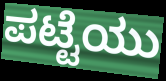
ಪಟ್ಟೆಯು